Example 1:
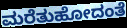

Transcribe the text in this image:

ಮರೆತುಹೋದಂತೆ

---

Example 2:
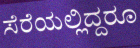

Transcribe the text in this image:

ಸೆರೆಯಲ್ಲಿದ್ದರೂ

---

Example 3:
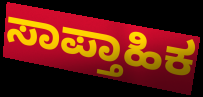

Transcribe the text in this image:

ಸಾಪ್ತಾಹಿಕ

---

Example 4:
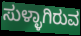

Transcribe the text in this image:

ಸುಳ್ಳಾಗಿರುವ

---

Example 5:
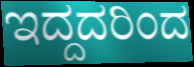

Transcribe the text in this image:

ಇದ್ದದರಿಂದ